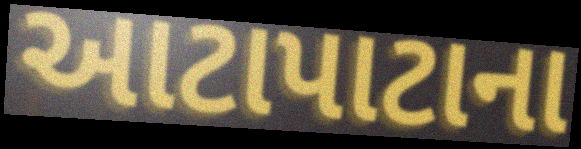
આટાપાટાના